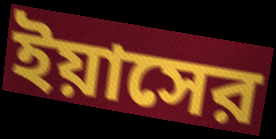
ইয়াসের